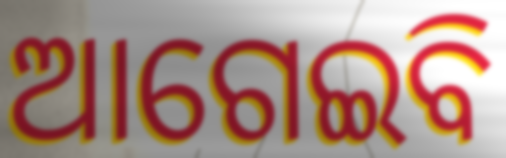
ଆଗେଇବି